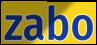
zabo